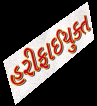
હરીફાઈયુક્ત